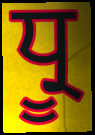
ਧ੍ਰੂ